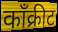
काँक्रीट